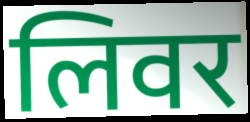
लिवर